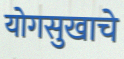
योगसुखाचे